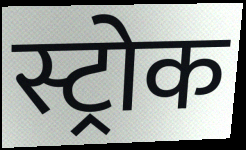
स्ट्रोक